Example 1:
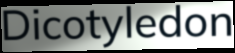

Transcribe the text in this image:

Dicotyledon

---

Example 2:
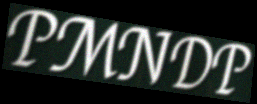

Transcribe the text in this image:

PMNDP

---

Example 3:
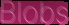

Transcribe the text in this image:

Blobs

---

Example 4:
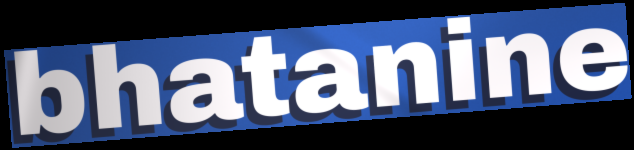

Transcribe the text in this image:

bhatanine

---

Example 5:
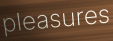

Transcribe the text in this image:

pleasures